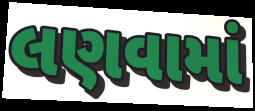
લણવામાં